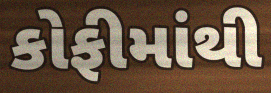
કોફીમાંથી